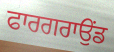
ਫਾਰਗਰਾਉਂਡ